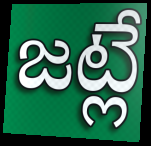
జట్లే